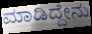
ಮಾಡಿದ್ದೇನು